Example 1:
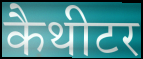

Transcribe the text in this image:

कैथीटर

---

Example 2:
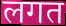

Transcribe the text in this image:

लगत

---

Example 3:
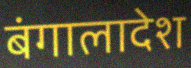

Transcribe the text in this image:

बंगालादेश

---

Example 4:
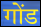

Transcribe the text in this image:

गोंड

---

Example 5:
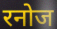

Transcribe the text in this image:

रनोज